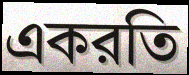
একরতি